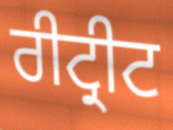
ਰੀਟ੍ਰੀਟ